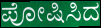
ಪೋಷಿಸಿದ